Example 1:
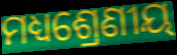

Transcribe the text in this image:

ମଧ୍ୟଶ୍ରେଣୀୟ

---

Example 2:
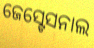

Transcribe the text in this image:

ଜେସ୍ଟେସନାଲ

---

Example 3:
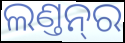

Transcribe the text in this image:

ଲଣ୍ତନ୍‌ର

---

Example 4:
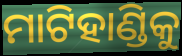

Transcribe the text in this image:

ମାଟିହାଣ୍ଡିକୁ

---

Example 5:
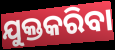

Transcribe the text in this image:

ଯୁକ୍ତକରିବା